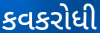
કવકરોધી